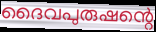
ദൈവപുരുഷന്റെ